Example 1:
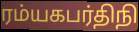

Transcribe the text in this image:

ரம்யகபர்திநி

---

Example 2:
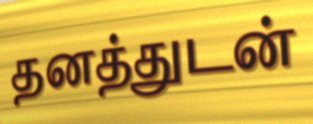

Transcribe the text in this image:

தனத்துடன்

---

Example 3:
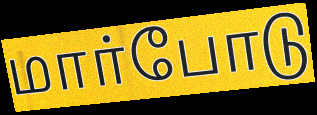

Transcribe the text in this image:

மார்போடு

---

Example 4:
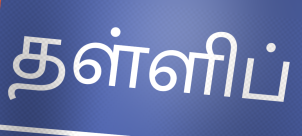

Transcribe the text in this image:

தள்ளிப்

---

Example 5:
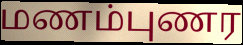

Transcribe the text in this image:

மணம்புணர